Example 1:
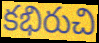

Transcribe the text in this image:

కభిరుచి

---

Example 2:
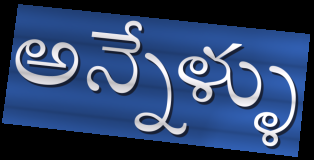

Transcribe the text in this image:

అన్నేళ్ళు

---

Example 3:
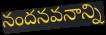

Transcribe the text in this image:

నందనవనాన్ని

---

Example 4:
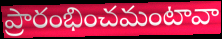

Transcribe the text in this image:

ప్రారంభించమంటావా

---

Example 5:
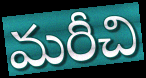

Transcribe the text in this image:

మరీచి